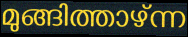
മുങ്ങിത്താഴ്ന്ന